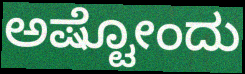
ಅಷ್ಟೋಂದು